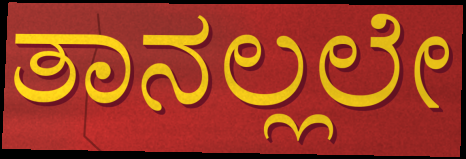
ತಾನಲ್ಲಲೇ